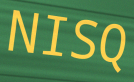
NISQ